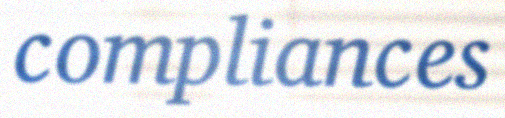
compliances